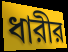
ধারীর